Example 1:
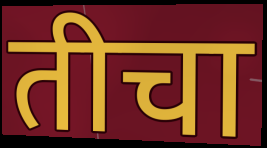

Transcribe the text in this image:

तीचा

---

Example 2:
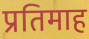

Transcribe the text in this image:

प्रतिमाह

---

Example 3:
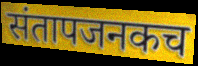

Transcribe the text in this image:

संतापजनकच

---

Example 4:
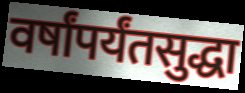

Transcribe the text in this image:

वर्षांपर्यंतसुद्धा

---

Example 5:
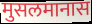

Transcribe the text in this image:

मुसलमानास